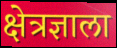
क्षेत्रज्ञाला